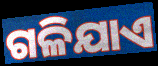
ଗଳିଯାଏ